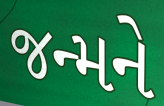
જન્મને